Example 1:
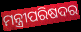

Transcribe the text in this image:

ମନ୍ତ୍ରୀପରିଷଦର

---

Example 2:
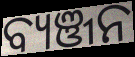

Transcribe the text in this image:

ବ୍ୟଞ୍ଜନ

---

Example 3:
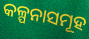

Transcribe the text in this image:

କଳ୍ପନାସମୂହ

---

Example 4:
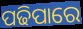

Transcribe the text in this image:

ପଢିପାରେ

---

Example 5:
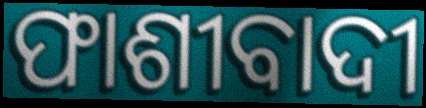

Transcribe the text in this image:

ଫାଶୀବାଦୀ